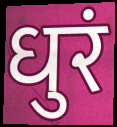
धुरं